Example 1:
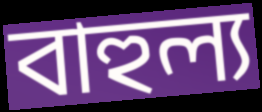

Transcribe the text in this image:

বাহুল্য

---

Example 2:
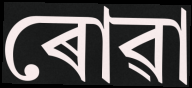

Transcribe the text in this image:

ৰোৱা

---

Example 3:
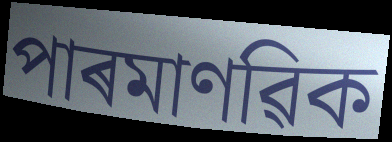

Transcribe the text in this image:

পাৰমাণৱিক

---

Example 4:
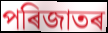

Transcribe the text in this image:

পৰিজাতৰ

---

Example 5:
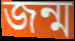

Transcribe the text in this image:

জন্ম